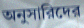
অনুসারিদের